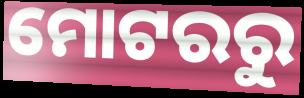
ମୋଟରରୁ